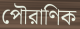
পৌরাণিক